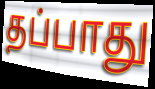
தப்பாது